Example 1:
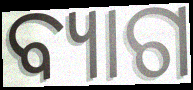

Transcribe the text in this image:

ବ୍ୟାଗ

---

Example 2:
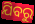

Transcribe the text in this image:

ଯିବରୁ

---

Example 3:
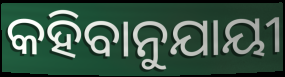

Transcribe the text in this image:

କହିବାନୁଯାୟୀ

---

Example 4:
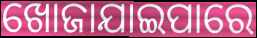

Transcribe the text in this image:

ଖୋଜାଯାଇପାରେ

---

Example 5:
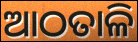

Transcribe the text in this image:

ଆଠତାଳି